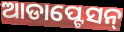
ଆଡାପ୍ଟେସନ୍